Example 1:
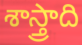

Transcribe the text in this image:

శాస్త్రాది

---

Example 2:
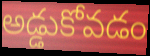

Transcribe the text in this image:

అడ్డుకోవడం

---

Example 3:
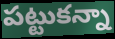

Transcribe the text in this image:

పట్టుకన్నా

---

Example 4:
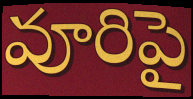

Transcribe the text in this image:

వూరిపై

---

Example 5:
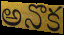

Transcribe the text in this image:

అనొక